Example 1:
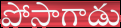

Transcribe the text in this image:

పోసాగాడు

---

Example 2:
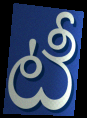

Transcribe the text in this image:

టీ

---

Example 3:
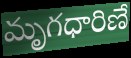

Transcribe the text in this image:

మృగధారిణే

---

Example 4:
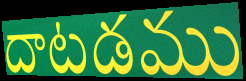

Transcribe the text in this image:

దాటడము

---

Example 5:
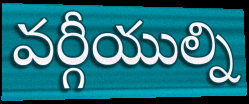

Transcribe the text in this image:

వర్గీయుల్ని